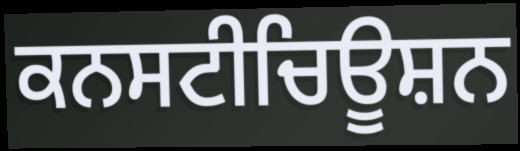
ਕਨਸਟੀਚਿਊਸ਼ਨ